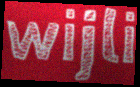
wijli